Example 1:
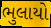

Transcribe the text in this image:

ભુલાયો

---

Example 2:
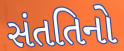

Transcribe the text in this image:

સંતતિનો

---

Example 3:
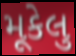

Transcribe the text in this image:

મૂકેલુ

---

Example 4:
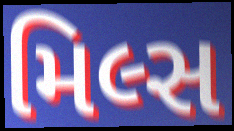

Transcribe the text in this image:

મિલ્સ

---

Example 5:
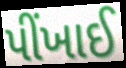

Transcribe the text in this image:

પીંખાઈ